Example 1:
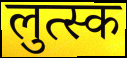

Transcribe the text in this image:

लुत्स्क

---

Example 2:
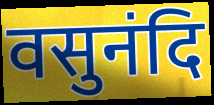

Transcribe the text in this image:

वसुनंदि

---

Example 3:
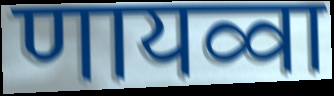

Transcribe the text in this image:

णायव्वा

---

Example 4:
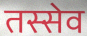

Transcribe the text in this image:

तस्सेव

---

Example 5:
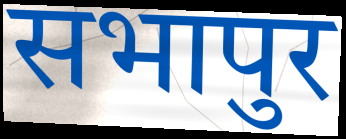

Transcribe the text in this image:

सभापुर